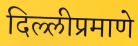
दिल्लीप्रमाणे